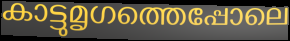
കാട്ടുമൃഗത്തെപ്പോലെ